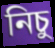
নিচু